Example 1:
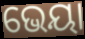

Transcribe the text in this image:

ଭେୟା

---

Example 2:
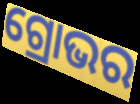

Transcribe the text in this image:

ଗ୍ରୋଭର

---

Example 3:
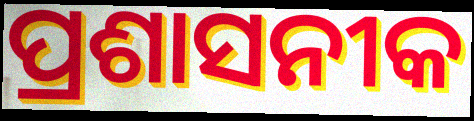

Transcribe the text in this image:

ପ୍ରଶାସନୀକ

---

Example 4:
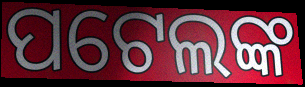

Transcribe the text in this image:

ପଟେଲଙ୍କ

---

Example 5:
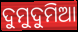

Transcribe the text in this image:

ଦୁମୁଦୁମିଆ